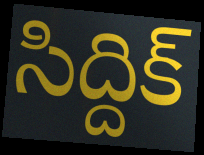
సిద్దిక్